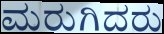
ಮರುಗಿದರು